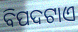
ବିପଦଟାଏ